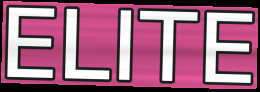
ELITE